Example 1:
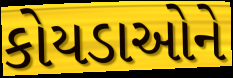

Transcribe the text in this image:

કોયડાઓને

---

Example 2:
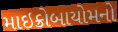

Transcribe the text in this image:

માઇક્રોબાયોમનો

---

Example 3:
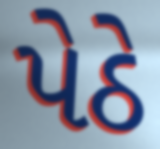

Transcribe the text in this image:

પેઠે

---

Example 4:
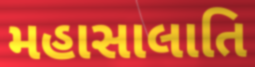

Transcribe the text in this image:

મહાસાલાતિ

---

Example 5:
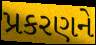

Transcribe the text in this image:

પ્રકરણને